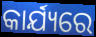
କାର୍ଯ୍ଯରେ